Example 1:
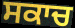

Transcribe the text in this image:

ਸਕਾਚ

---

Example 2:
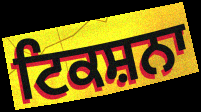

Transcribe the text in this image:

ਟਿਕਸ਼ਨਾ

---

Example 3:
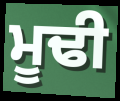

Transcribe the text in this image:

ਮੂਢੀ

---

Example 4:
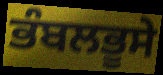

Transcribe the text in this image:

ਭੰਬਲਭੂਸੇ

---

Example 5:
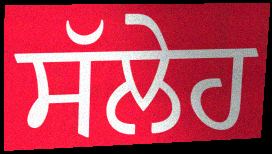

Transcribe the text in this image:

ਸੱਲੇਹ